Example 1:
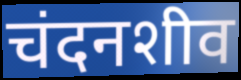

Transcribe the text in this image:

चंदनशीव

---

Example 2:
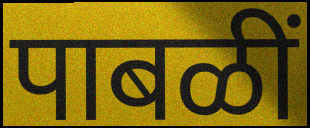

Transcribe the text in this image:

पाबळीं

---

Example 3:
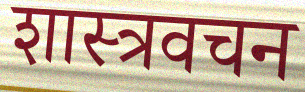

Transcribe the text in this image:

शास्त्रवचन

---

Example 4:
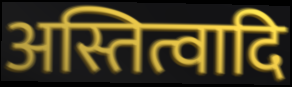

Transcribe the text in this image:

अस्तित्वादि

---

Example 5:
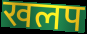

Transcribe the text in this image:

खलप